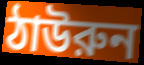
ঠাউরুন